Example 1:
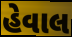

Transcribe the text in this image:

હેવાલ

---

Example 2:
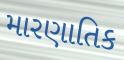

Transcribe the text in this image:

મારણાતિક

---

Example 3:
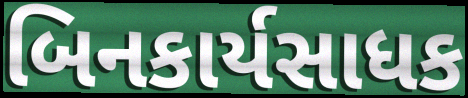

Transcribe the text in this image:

બિનકાર્યસાધક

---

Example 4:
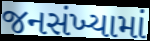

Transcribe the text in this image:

જનસંખ્યામાં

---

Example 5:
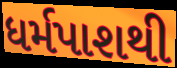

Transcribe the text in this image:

ધર્મપાશથી